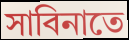
সাবিনাতে